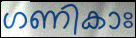
ഗണികാഃ